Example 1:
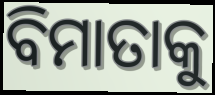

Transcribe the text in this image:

ବିମାତାକୁ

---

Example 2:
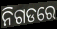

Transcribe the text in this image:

ନିଗଡରେ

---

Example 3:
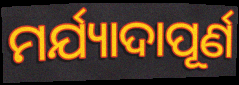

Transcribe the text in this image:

ମର୍ଯ୍ୟାଦାପୂର୍ଣ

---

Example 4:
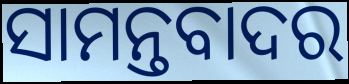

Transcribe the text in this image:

ସାମନ୍ତବାଦର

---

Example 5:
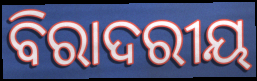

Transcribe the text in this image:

ବିରାଦରୀୟ